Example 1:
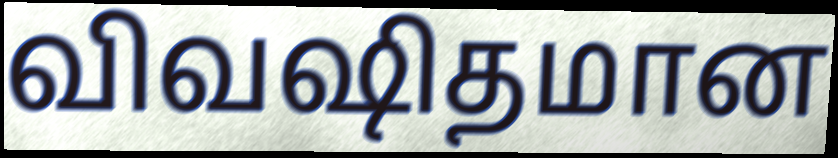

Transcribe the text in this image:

விவஷிதமான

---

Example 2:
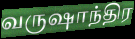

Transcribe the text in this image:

வருஷாந்திர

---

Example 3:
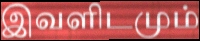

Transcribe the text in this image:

இவளிடமும்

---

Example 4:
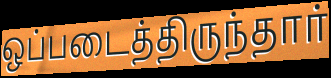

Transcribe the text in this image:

ஒப்படைத்திருந்தார்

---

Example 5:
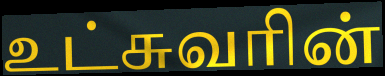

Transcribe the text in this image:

உட்சுவரின்